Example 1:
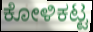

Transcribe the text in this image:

ಕೋಳಿಕಟ್ಟ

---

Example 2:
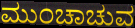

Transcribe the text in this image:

ಮುಂಚಾಚುವ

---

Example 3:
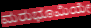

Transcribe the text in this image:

ಮರುಭೂಮಿಯೇ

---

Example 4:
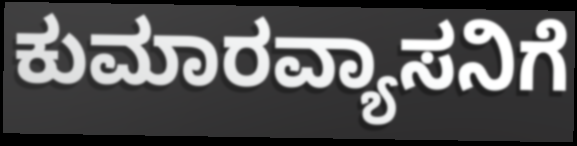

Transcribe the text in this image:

ಕುಮಾರವ್ಯಾಸನಿಗೆ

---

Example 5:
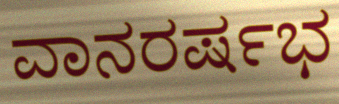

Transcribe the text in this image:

ವಾನರರ್ಷಭ